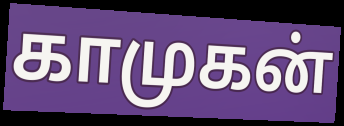
காமுகன்